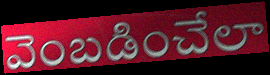
వెంబడించేలా